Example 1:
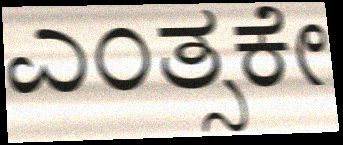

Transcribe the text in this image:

ಎಂತ್ಸಕೇ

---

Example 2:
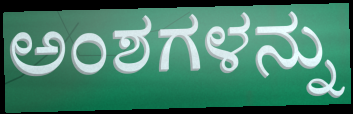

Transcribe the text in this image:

ಅಂಶಗಳನ್ನು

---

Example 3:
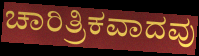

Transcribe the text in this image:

ಚಾರಿತ್ರಿಕವಾದವು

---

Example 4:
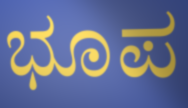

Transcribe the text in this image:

ಭೂಪ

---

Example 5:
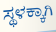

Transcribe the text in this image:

ಸ್ಥಳಕ್ಕಾಗಿ